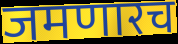
जमणारच